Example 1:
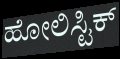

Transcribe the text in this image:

ಹೋಲಿಸ್ಟಿಕ್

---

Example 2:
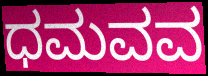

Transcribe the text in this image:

ಧಮವವ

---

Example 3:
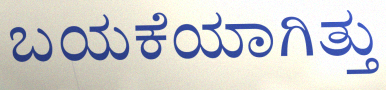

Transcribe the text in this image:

ಬಯಕೆಯಾಗಿತ್ತು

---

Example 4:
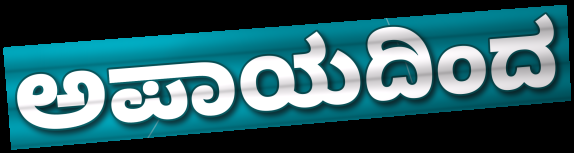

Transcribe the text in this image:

ಅಪಾಯದಿಂದ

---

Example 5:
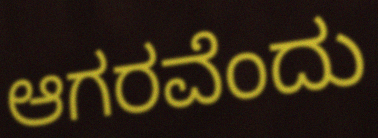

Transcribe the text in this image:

ಆಗರವೆಂದು